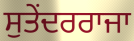
ਸੁਤੇਂਦਰਰਾਜਾ